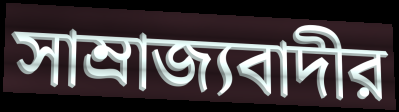
সাম্রাজ্যবাদীর